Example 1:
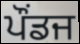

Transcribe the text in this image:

ਪੌਂਡਜ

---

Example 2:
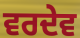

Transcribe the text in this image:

ਵਰਦੇਵ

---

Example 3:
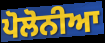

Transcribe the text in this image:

ਪੋਲੋਨੀਆ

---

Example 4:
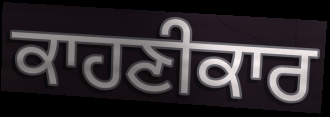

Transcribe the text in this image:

ਕਾਹਣੀਕਾਰ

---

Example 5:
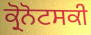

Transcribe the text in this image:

ਕ੍ਰੋਨੋਟਸਕੀ